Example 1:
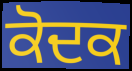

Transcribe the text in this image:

ਕੋਦਕ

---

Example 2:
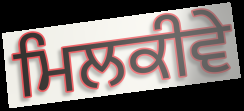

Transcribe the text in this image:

ਮਿਲਕੀਵੇ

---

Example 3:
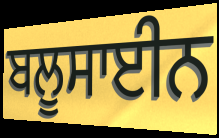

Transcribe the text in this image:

ਬਲੂਸਾਈਨ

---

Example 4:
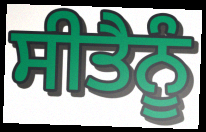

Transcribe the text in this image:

ਸੀਤੈਨੂੰ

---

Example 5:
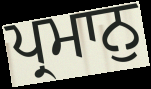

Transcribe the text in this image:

ਪ੍ਰਮਾਨੁ